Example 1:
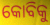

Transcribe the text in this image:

କୋବିକୁ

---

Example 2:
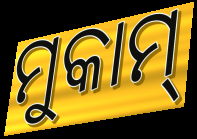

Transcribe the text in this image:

ମୁକାମ୍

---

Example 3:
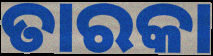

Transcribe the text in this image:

ତାରକା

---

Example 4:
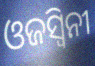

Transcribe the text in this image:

ଓଜସ୍ଵିନୀ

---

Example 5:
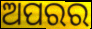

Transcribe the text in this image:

ଅପରର